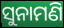
ସୁନାମଣି